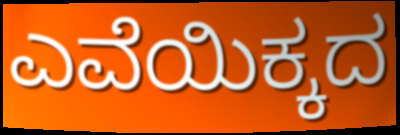
ಎವೆಯಿಕ್ಕದ